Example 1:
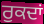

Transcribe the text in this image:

ਰੁਕਦਾਂ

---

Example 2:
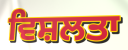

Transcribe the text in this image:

ਵਿਸ਼ਲਤਾ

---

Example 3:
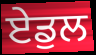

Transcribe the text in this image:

ਏਡੁਲ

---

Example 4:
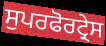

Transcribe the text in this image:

ਸੁਪਰਫੋਰਟ੍ਰੇਸ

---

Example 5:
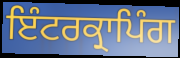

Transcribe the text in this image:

ਇੰਟਰਕ੍ਰਾਪਿੰਗ